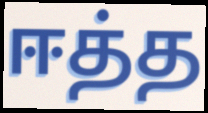
ஈத்த